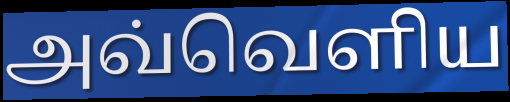
அவ்வெளிய